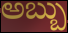
అబ్బు